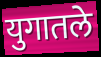
युगातले